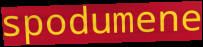
spodumene